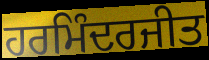
ਹਰਮਿੰਦਰਜੀਤ